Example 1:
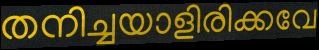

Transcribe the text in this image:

തനിച്ചയാളിരിക്കവേ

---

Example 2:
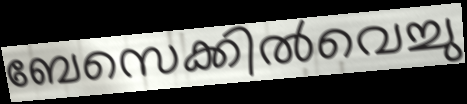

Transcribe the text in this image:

ബേസെക്കിൽവെച്ചു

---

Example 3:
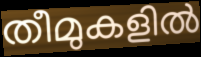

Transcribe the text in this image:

തീമുകളിൽ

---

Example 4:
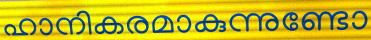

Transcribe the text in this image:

ഹാനികരമാകുന്നുണ്ടോ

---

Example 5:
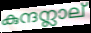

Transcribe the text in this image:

കുന്ദന്ലാല്